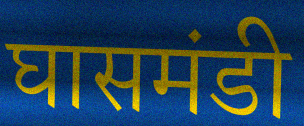
घासमंडी